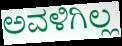
ಅವಳಿಗಿಲ್ಲ